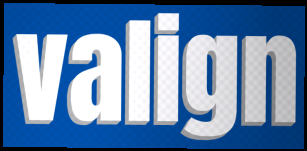
valign